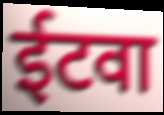
ईटवा